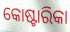
କୋଷ୍ଟାରିକା